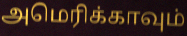
அமெரிக்காவும்